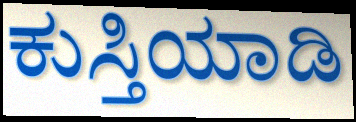
ಕುಸ್ತಿಯಾಡಿ